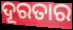
ଦୂରତାର